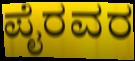
ಪೈರವರ